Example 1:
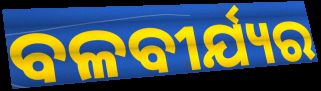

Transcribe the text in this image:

ବଳବୀର୍ଯ୍ୟର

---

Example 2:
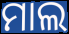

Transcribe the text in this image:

ମାଲ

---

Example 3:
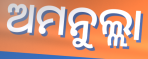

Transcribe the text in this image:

ଅମନୁଲ୍ଲା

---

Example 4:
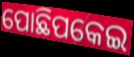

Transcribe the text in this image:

ପୋଛିପକେଇ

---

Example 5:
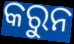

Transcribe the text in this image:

କରୁନ